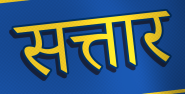
सत्तार